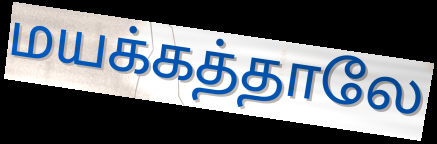
மயக்கத்தாலே